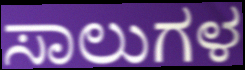
ಸಾಲುಗಳ